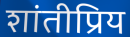
शांतीप्रिय